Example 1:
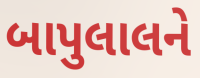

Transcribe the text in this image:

બાપુલાલને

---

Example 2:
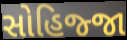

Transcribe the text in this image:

સોહિજ્જા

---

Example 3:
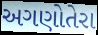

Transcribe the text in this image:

અગણોતેરા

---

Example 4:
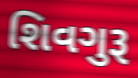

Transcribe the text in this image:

શિવગુરૂ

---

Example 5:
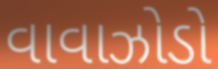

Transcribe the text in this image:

વાવાઝોડો